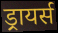
ड्रायर्स